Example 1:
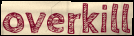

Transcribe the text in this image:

overkill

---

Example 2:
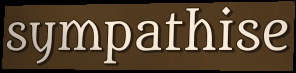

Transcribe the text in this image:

sympathise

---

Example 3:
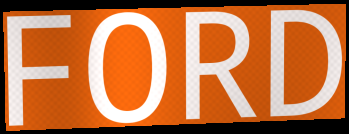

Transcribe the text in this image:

FORD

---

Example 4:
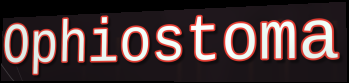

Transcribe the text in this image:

Ophiostoma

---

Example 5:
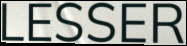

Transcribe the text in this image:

LESSER